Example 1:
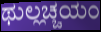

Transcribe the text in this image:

ಥುಲ್ಲಚ್ಚಯಂ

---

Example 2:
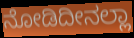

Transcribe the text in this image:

ನೋಡಿದೀನಲ್ಲಾ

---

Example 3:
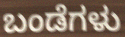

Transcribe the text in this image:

ಬಂಡೆಗಳು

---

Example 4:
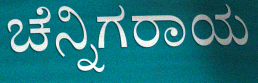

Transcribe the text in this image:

ಚೆನ್ನಿಗರಾಯ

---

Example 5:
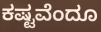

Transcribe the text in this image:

ಕಷ್ಟವೆಂದೂ